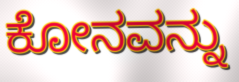
ಕೋನವನ್ನು